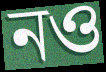
নও